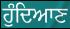
ਹੁੰਦਿਆਣ